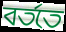
বর্ততে